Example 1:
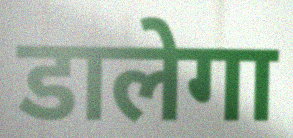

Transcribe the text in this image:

डालेगा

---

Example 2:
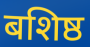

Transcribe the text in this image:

बशिष्ठ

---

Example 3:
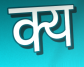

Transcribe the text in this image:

क्य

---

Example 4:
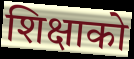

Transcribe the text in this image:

शिक्षाको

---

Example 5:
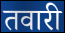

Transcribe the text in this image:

तवारी